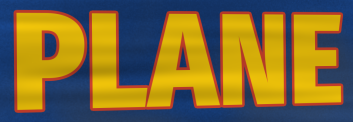
PLANE